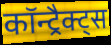
कॉन्ट्रैक्ट्स